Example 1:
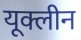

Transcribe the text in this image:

यूक्लीन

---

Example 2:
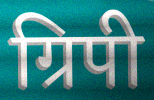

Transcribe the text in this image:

ग्रिपी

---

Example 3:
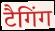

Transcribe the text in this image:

टैगिंग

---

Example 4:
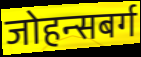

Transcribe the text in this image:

जोहन्सबर्ग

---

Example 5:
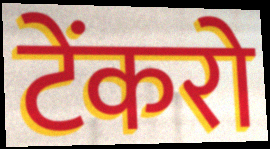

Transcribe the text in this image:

टेंकरो